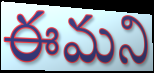
ఈమని